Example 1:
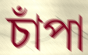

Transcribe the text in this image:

চাঁপা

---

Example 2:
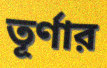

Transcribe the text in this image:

তূর্ণার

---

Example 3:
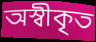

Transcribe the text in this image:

অস্বীকৃত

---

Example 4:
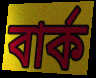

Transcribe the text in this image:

বার্ক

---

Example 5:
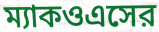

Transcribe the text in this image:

ম্যাকওএসের